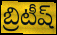
బ్రిటీష్